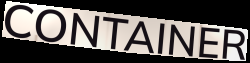
CONTAINER